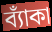
ব্যাঁকা